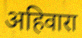
अहिवारा